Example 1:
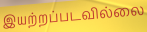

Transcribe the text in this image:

இயற்றப்படவில்லை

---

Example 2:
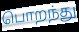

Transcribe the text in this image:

பொறந்து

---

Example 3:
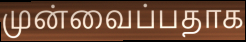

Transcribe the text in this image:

முன்வைப்பதாக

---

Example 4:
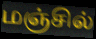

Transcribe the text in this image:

மஞ்சில்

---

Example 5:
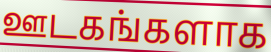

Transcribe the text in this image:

ஊடகங்களாக